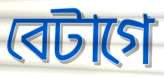
বেটাগে